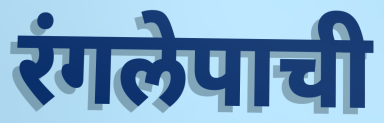
रंगलेपाची